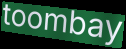
toombay